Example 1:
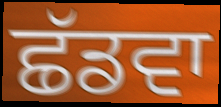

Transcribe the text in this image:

ਛੱਡਵਾ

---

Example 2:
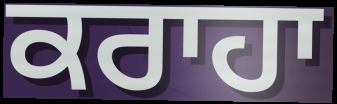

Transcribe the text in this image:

ਕਰਾਹਾ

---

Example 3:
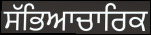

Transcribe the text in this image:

ਸੱਭਿਆਚਾਰਿਕ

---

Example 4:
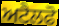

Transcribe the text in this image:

ਅਟੈਲਫੋ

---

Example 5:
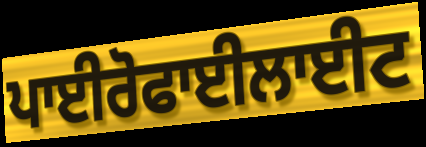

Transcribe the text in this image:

ਪਾਈਰੋਫਾਈਲਾਈਟ